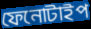
ফেনোটাইপ